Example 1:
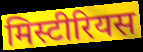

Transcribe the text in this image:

मिस्टीरियस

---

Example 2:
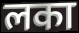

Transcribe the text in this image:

लका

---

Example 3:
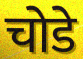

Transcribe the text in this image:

चोडे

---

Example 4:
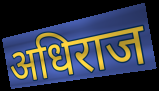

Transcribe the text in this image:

अधिराज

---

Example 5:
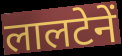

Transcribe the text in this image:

लालटेनें